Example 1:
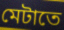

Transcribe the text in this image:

মেটাতে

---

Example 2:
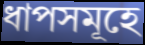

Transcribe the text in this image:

ধাপসমূহে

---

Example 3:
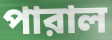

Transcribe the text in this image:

পারাল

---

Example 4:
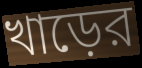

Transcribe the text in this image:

খাড়ের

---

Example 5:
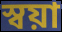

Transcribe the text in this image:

স্বয়া